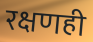
रक्षणही